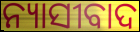
ନ୍ୟାସୀବାଦ